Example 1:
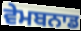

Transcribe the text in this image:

ਵੇਮਬਨਾਡ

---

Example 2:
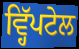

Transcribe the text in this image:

ਵ੍ਹਿੱਪਟੇਲ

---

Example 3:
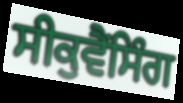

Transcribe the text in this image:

ਸੀਕੁਵੈਂਸਿੰਗ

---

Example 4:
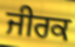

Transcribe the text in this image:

ਜੀਰਕ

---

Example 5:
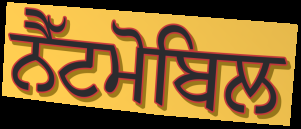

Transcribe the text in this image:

ਨੈੱਟਮੋਬਿਲ